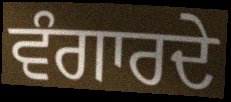
ਵੰਗਾਰਦੇ